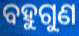
ବହୁଗୁଣ